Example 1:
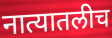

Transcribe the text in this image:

नात्यातलीच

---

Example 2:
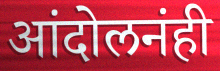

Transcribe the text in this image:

आंदोलनंही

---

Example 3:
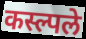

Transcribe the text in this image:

कस्ल्पले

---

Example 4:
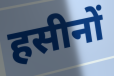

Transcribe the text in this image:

हसीनों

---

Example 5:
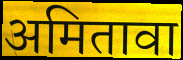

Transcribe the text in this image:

अमितावा